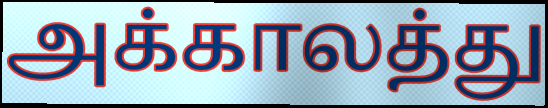
அக்காலத்து